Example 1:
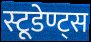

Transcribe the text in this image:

स्टूडेण्ट्स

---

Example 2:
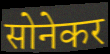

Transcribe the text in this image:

सोनेकर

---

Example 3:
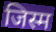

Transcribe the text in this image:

जिस्म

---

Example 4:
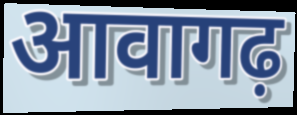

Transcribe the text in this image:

आवागढ़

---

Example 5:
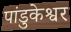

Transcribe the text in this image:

पांडुकेश्वर